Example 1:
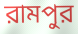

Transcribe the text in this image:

রামপুর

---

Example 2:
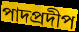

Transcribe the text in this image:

পাদপ্রদীপ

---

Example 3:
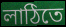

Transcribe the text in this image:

লাঠিতে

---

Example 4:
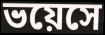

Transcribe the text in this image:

ভয়েসে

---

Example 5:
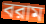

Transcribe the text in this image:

বরাম